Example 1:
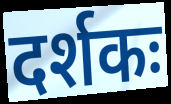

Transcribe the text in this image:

दर्शकः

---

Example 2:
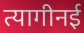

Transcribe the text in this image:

त्यागीनई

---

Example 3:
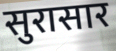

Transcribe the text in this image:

सुरासार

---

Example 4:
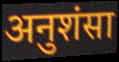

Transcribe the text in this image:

अनुशंसा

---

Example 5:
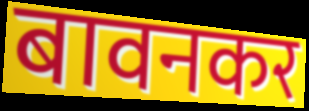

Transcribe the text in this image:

बावनकर